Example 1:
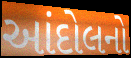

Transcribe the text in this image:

આંદોલનો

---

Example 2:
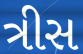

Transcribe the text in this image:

ત્રીસ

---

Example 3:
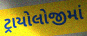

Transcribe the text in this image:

ટ્રાયોલોજીમાં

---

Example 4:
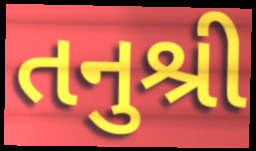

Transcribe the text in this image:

તનુશ્રી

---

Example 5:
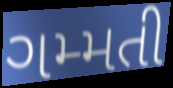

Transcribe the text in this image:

ગમ્મતી